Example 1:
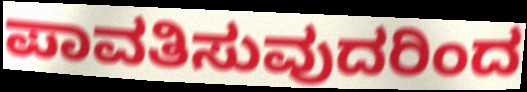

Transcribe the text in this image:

ಪಾವತಿಸುವುದರಿಂದ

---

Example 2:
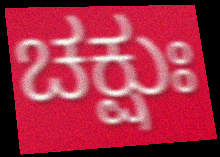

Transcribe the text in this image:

ಚಕ್ಷುಃ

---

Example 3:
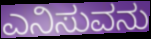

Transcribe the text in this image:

ಎನಿಸುವನು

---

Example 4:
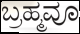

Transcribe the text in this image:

ಬ್ರಹ್ಮವೂ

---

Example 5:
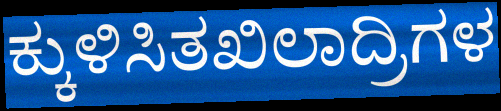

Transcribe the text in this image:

ಕ್ಕುಳಿಸಿತಖಿಲಾದ್ರಿಗಳ